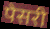
पेसरी